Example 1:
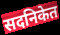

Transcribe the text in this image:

सदनिकेत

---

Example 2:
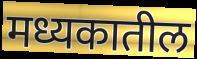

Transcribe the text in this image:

मध्यकातील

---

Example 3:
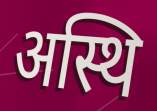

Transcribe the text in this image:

अस्थि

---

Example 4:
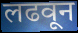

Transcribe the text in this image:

लढवून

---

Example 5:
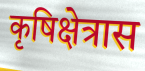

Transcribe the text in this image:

कृषिक्षेत्रास